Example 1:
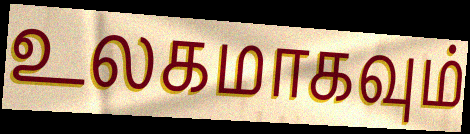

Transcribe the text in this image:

உலகமாகவும்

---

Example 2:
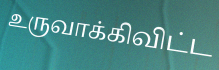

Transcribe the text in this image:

உருவாக்கிவிட்ட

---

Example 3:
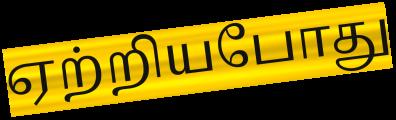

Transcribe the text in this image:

ஏற்றியபோது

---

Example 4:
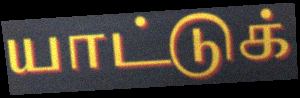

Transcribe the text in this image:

யாட்டுக்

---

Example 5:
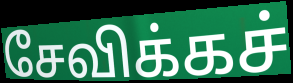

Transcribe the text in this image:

சேவிக்கச்